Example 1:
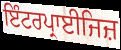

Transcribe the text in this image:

ਇੰਟਰਪ੍ਰਾਈਜਿਜ਼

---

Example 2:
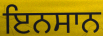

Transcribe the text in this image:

ਇਨਸਾਨ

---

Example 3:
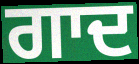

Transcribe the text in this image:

ਗਾਦ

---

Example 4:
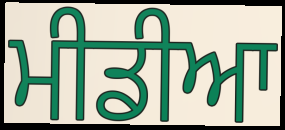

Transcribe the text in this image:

ਮੀਡੀਆ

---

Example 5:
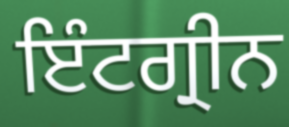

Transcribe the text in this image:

ਇੰਟਗ੍ਰੀਨ